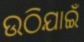
ଉଠିଯାଇଁ